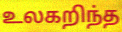
உலகறிந்த